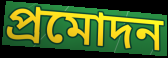
প্রমোদন